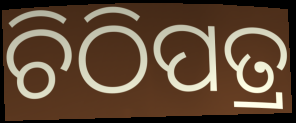
ଚିଠିପତ୍ର